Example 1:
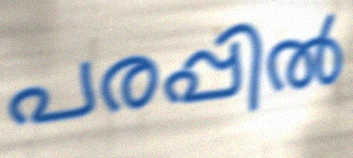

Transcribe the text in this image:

പരപ്പിൽ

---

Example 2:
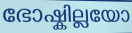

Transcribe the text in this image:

ഭോഷ്കില്ലയോ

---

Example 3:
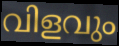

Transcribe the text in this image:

വിളവും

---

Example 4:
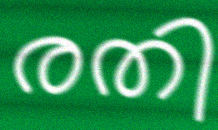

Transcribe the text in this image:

രതി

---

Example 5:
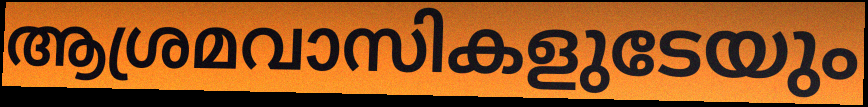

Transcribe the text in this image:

ആശ്രമവാസികളുടേയും